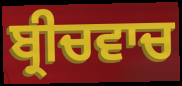
ਬ੍ਰੀਚਵਾਚ